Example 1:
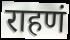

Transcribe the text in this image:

राहणं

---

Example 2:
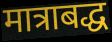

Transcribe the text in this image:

मात्राबद्ध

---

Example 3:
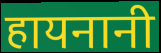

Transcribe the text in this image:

हायनानी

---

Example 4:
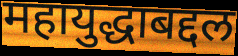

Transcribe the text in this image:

महायुद्धाबद्दल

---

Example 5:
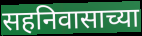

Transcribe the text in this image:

सहनिवासाच्या